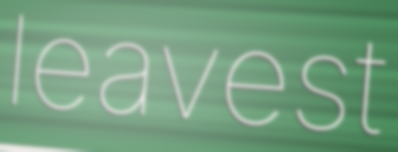
leavest